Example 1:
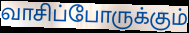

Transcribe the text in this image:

வாசிப்போருக்கும்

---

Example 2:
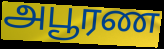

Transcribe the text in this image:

அபூரண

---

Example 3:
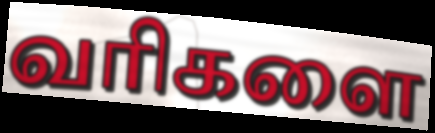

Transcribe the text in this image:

வரிகளை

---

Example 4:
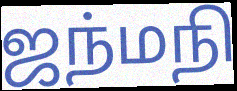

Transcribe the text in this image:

ஜந்மநி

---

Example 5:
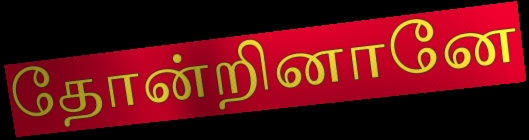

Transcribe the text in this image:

தோன்றினானே